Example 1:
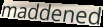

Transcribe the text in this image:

maddened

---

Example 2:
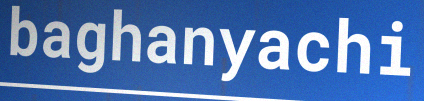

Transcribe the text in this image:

baghanyachi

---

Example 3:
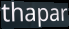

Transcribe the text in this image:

thapar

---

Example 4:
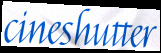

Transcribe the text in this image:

cineshutter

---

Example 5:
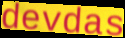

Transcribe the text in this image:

devdas